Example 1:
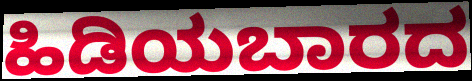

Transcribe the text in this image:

ಹಿಡಿಯಬಾರದ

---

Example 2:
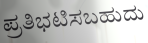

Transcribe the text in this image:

ಪ್ರತಿಭಟಿಸಬಹುದು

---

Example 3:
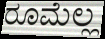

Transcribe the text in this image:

ರೂಮೆಲ್ಲ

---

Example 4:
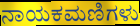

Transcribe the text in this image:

ನಾಯಕಮಣಿಗಳು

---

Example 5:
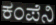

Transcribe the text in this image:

ಕಂಪೆನಿ